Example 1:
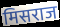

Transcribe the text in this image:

मिसराज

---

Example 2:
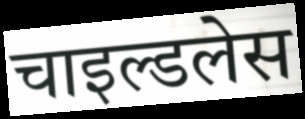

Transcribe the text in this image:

चाइल्डलेस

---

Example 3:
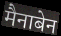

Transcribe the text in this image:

मैनाबेन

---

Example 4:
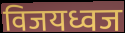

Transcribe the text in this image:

विजयध्वज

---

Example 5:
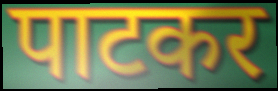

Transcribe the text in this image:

पाटकर